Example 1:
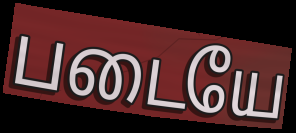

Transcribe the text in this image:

படையே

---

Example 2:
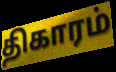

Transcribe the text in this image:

திகாரம்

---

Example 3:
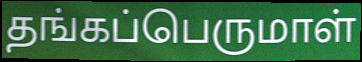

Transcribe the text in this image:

தங்கப்பெருமாள்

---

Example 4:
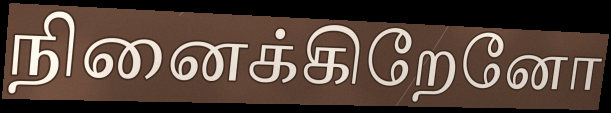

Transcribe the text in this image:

நினைக்கிறேனோ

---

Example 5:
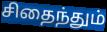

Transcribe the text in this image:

சிதைந்தும்